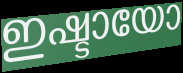
ഇഷ്ടായോ